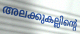
അലക്കുകല്ലിന്റെ